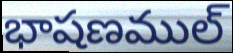
భాషణముల్